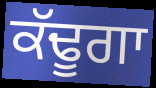
ਕੱਢੂਗਾ